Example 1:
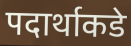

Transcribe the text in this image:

पदार्थाकडे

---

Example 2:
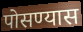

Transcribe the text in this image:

पोसण्यास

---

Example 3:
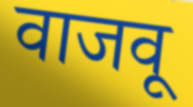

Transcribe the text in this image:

वाजवू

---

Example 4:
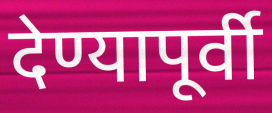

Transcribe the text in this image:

देण्यापूर्वी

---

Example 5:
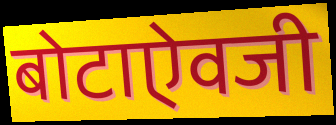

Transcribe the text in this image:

बोटाऐवजी